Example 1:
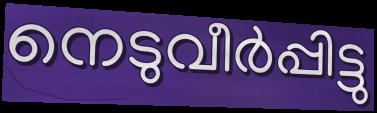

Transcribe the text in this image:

നെടുവീർപ്പിട്ടു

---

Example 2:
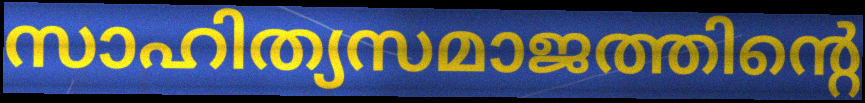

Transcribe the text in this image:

സാഹിത്യസമാജത്തിന്റെ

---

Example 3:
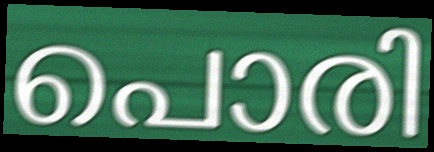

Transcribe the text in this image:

പൊരി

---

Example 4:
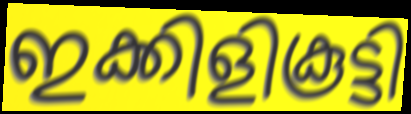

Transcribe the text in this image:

ഇക്കിളികൂട്ടി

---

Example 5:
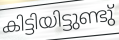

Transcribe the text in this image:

കിട്ടിയിട്ടുണ്ടു്